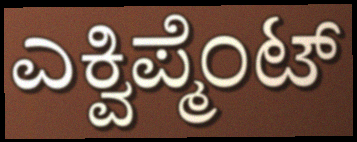
ಎಕ್ವಿಪ್ಮೆಂಟ್